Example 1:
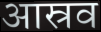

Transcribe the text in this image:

आस्रव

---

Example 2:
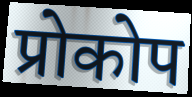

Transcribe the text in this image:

प्रोकोप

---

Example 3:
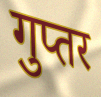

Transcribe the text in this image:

गुप्तर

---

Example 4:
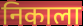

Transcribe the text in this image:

निकाला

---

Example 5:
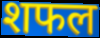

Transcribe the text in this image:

शफल